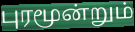
புரமூன்றும்